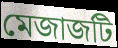
মেজাজটি